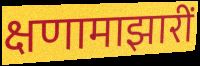
क्षणामाझारीं